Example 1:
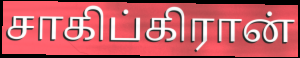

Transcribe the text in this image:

சாகிப்கிரான்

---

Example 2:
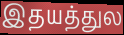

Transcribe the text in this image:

இதயத்துல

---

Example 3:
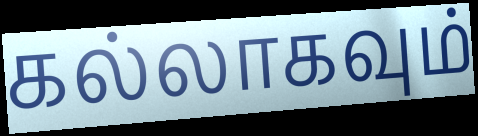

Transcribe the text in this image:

கல்லாகவும்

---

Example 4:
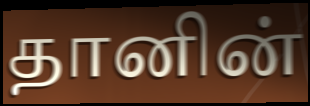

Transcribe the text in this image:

தானின்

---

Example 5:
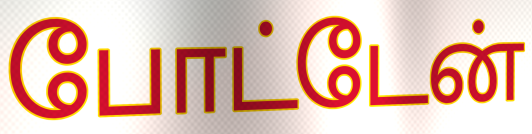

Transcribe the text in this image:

போட்டேன்